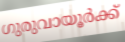
ഗുരുവായൂർക്ക്